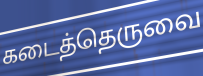
கடைத்தெருவை